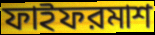
ফাইফরমাশ